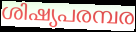
ശിഷ്യപരമ്പര